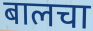
बालचा